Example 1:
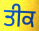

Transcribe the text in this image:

ਤੀਕ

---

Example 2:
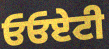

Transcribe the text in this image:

ਓਓਏਟੀ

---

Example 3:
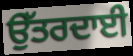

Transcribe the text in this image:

ਉੱਤਰਦਾਈ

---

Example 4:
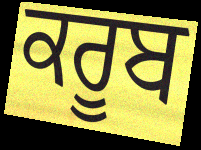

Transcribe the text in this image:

ਕਰੂਬ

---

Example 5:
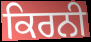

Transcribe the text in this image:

ਕਿਰਨੀ